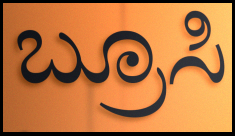
ಬ್ರೂಸಿ